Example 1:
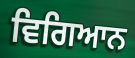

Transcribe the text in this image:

ਵਿਗਿਆਨ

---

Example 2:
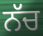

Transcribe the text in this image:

ਨੱਚ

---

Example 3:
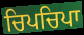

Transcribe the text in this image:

ਚਿਪਚਿਪਾ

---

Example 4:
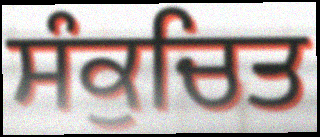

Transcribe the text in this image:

ਸੰਕੁਚਿਤ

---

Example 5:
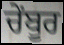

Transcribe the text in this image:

ਚੇਂਬੂਰ